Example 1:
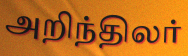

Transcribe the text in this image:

அறிந்திலர்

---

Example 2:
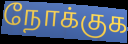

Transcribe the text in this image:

நோக்குக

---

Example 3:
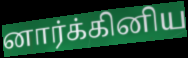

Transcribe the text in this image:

னார்க்கினிய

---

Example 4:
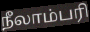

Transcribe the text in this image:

நீலாம்பரி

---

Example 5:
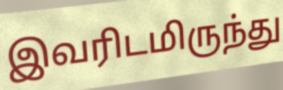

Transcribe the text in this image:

இவரிடமிருந்து